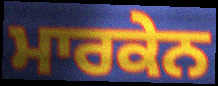
ਮਾਰਕੇਨ